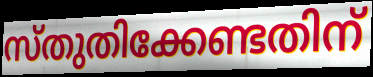
സ്തുതിക്കേണ്ടതിന്